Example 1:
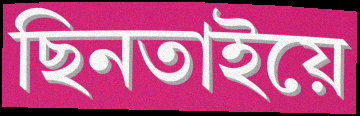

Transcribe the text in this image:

ছিনতাইয়ে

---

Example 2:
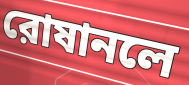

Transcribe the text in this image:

রোষানলে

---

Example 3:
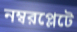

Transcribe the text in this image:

নম্বরপ্লেটে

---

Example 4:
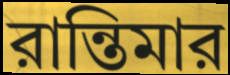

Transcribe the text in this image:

রান্তিমার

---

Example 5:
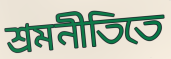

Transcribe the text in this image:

শ্রমনীতিতে